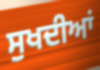
ਸੁਖਦੀਆਂ